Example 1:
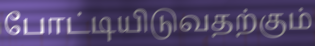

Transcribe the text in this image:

போட்டியிடுவதற்கும்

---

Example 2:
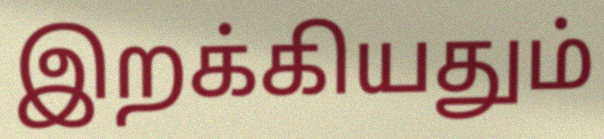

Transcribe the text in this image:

இறக்கியதும்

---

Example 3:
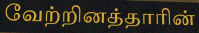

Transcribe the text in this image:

வேற்றினத்தாரின்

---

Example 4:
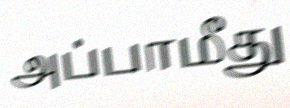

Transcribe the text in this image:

அப்பாமீது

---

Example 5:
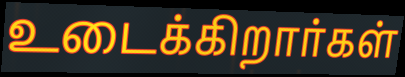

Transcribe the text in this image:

உடைக்கிறார்கள்